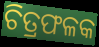
ଚିତ୍ରଫଳକ